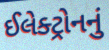
ઈલેક્ટ્રોનનું